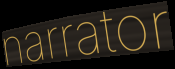
narrator